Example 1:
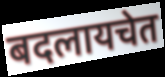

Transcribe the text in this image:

बदलायचेत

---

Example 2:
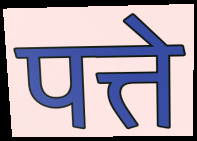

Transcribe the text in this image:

पत्ते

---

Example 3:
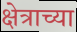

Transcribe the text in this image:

क्षेत्राच्या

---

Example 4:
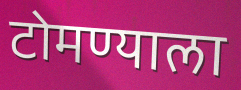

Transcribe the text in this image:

टोमण्याला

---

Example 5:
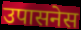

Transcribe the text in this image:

उपासनेस